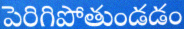
పెరిగిపోతుండడం